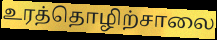
உரத்தொழிற்சாலை